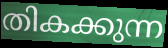
തികക്കുന്ന